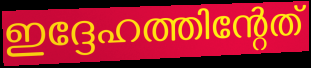
ഇദ്ദേഹത്തിന്റേത്